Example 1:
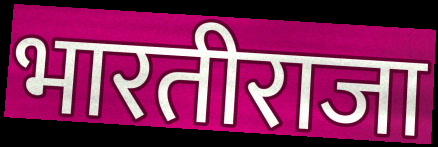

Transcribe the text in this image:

भारतीराजा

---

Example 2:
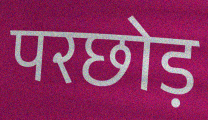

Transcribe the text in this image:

परछोड़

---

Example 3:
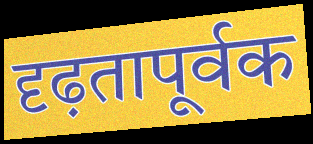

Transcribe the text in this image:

दृढ़तापूर्वक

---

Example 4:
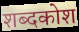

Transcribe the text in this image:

शब्दकोश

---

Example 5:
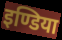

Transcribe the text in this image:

इण्डिया